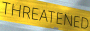
THREATENED